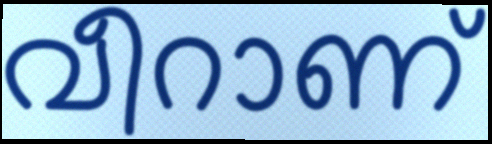
വീറാണ്